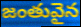
జంతువైన